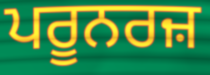
ਪਰੂਨਰਜ਼